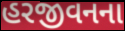
હરજીવનના